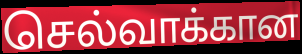
செல்வாக்கான